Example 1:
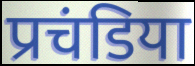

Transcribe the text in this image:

प्रचंडिया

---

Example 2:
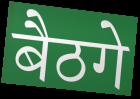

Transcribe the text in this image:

बैठगे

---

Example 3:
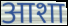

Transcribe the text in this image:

आशा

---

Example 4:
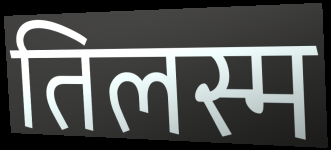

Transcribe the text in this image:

तिलस्म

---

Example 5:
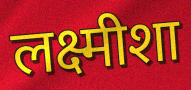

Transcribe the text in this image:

लक्ष्मीशा